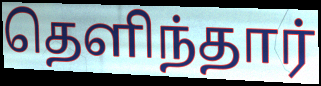
தெளிந்தார்